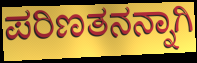
ಪರಿಣತನನ್ನಾಗಿ